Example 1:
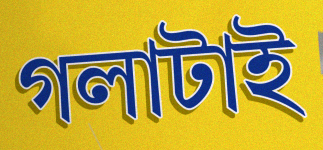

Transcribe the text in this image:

গলাটাই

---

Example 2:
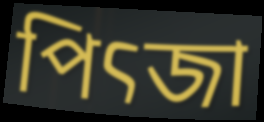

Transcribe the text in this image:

পিৎজা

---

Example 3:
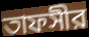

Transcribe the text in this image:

তাফসীর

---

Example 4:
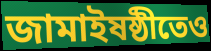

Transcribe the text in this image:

জামাইষষ্ঠীতেও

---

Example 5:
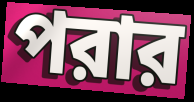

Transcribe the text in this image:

পরার